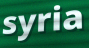
syria